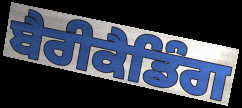
ਬੈਰੀਕੈਡਿੰਗ